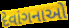
દેવાંગનાઓ